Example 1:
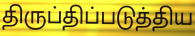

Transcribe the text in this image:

திருப்திப்படுத்திய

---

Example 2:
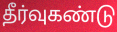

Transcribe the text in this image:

தீர்வுகண்டு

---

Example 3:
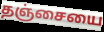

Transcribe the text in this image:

தஞ்சையை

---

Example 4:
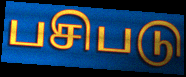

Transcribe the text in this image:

பசிபடு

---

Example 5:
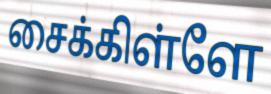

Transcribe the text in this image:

சைக்கிள்ளே